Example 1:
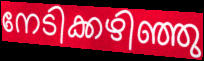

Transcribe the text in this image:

നേടിക്കഴിഞ്ഞു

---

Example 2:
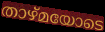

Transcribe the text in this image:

താഴ്മയോടെ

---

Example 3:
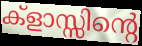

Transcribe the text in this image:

ക്ളാസ്സിന്റെ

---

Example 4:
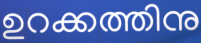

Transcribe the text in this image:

ഉറക്കത്തിനു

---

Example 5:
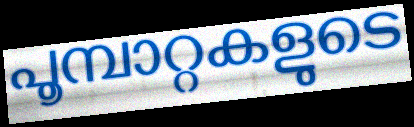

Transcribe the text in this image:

പൂമ്പാറ്റകളുടെ